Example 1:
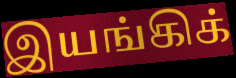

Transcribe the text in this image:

இயங்கிக்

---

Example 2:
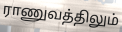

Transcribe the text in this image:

ராணுவத்திலும்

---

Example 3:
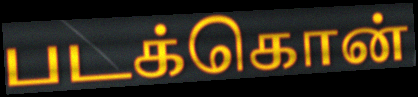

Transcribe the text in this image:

படக்கொன்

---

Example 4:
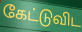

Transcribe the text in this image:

கேட்டுவிட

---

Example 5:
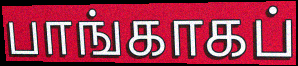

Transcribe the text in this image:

பாங்காகப்